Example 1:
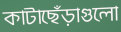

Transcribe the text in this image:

কাটাছেঁড়াগুলো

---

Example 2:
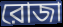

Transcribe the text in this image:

রোজা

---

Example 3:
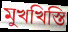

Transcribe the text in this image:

মুখখিস্তি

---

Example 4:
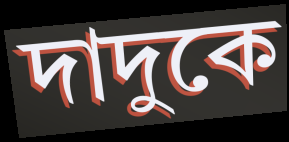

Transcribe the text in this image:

দাদুকে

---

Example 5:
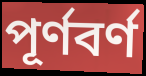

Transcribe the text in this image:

পূর্ণবর্ণ